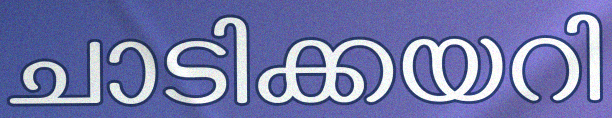
ചാടിക്കയറി